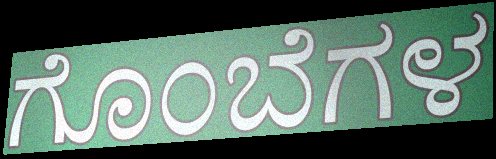
ಗೊಂಬೆಗಳ